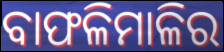
ବାଫଳିମାଳିର